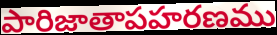
పారిజాతాపహరణము